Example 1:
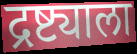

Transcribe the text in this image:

द्रष्ट्याला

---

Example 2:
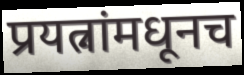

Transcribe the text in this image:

प्रयत्नांमधूनच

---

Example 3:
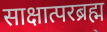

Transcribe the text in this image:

साक्षात्परब्रह्म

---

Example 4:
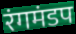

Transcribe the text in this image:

रंगमंडप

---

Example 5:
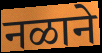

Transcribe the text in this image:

नळाने